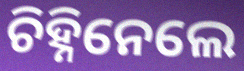
ଚିହ୍ନିନେଲେ